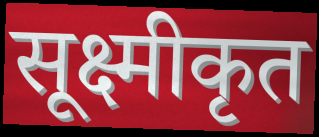
सूक्ष्मीकृत